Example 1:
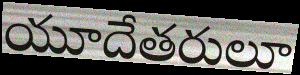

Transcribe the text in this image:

యూదేతరులూ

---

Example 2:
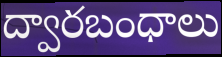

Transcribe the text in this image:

ద్వారబంధాలు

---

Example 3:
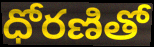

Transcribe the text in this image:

ధోరణితో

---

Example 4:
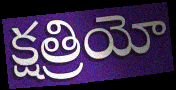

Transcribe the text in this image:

క్షత్రియో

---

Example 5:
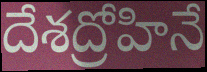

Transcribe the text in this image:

దేశద్రోహినే